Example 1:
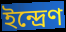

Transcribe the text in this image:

ইন্দ্রেণ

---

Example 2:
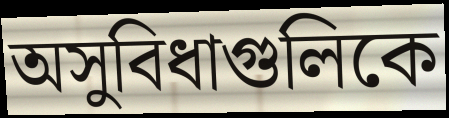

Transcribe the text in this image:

অসুবিধাগুলিকে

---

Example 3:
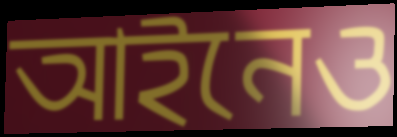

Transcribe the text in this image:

আইনেও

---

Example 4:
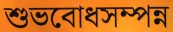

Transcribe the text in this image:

শুভবোধসম্পন্ন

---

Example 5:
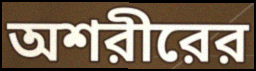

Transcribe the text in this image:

অশরীরের